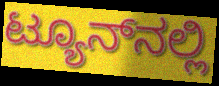
ಟ್ಯೂನ್‌ನಲ್ಲಿ